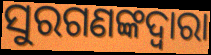
ସୁରଗଣଙ୍କଦ୍ୱାରା